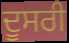
ਦੂਸਰੀ